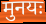
मुनयः